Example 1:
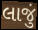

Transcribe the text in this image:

લાજું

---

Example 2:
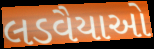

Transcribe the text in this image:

લડવૈયાઓ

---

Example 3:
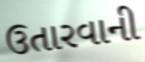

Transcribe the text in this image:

ઉતારવાની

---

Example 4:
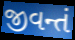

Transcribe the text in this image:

જીવન્તં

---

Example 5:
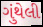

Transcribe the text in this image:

ગુંથેલી